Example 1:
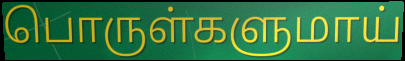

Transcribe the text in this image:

பொருள்களுமாய்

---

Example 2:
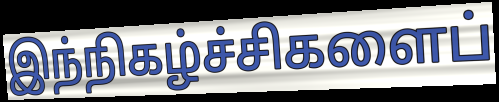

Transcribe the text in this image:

இந்நிகழ்ச்சிகளைப்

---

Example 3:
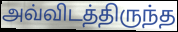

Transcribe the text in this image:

அவ்விடத்திருந்த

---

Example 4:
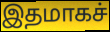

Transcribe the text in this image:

இதமாகச்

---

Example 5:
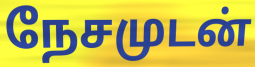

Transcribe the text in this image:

நேசமுடன்